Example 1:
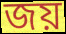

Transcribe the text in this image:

জয়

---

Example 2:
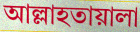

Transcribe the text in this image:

আল্লাহতায়ালা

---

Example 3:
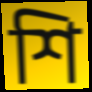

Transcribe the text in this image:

শি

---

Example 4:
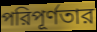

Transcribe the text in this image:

পরিপূর্ণতার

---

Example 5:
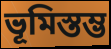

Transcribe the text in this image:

ভূমিস্তম্ভ